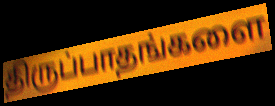
திருப்பாதங்களை